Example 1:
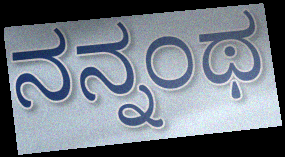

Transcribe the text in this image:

ನನ್ನಂಥ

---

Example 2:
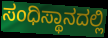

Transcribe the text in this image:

ಸಂಧಿಸ್ಥಾನದಲ್ಲಿ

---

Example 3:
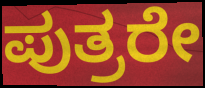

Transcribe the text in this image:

ಪುತ್ರರೇ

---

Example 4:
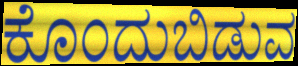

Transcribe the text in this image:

ಕೊಂದುಬಿಡುವ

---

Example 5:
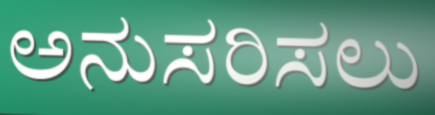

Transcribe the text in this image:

ಅನುಸರಿಸಲು